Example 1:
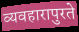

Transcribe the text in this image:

व्यवहारापुरते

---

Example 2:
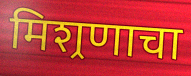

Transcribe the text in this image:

मिश्रणाचा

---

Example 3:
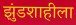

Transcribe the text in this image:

झुंडशाहीला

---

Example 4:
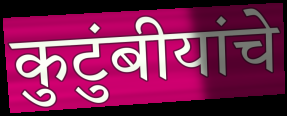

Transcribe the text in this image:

कुटुंबीयांचे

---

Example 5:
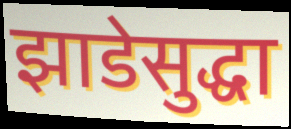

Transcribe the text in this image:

झाडेसुद्धा